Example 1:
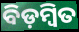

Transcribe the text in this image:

ବିଡ଼ମ୍ବିତ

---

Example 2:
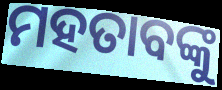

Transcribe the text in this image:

ମହତାବଙ୍କୁ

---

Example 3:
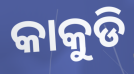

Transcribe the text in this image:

କାକୁଡି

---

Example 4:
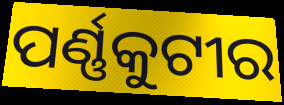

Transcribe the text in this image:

ପର୍ଣ୍ଣକୁଟୀର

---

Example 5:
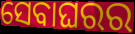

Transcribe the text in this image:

ସେବାଘରର